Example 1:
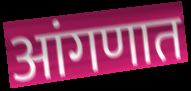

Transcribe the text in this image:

आंगणात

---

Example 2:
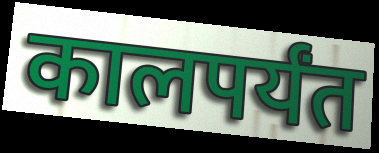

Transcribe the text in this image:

कालपर्यंत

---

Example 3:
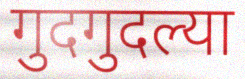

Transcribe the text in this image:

गुदगुदल्या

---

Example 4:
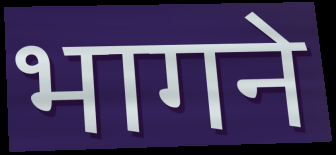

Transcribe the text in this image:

भागने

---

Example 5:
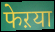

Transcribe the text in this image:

फेऱया